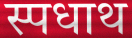
स्पधाथ